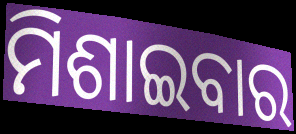
ମିଶାଇବାର